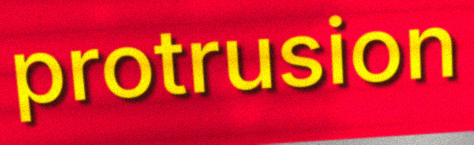
protrusion